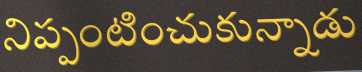
నిప్పంటించుకున్నాడు